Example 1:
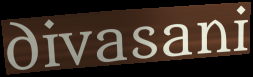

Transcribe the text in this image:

divasani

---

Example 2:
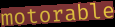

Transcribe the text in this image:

motorable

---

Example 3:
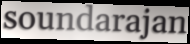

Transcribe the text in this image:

soundarajan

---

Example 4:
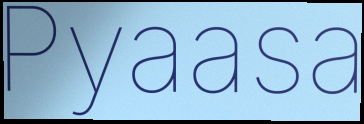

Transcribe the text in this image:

Pyaasa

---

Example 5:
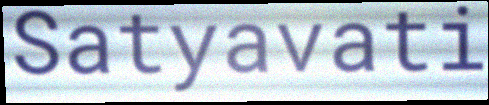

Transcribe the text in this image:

Satyavati